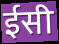
ईसी